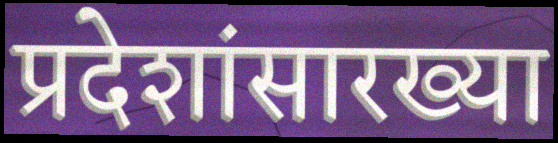
प्रदेशांसारख्या